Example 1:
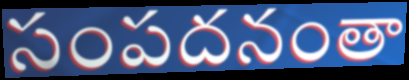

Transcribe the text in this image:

సంపదనంతా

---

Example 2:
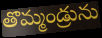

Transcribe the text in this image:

తొమ్మండ్రును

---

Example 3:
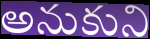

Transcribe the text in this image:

అనుకుని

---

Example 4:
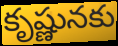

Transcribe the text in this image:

కృష్ణునకు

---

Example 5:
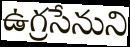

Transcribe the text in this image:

ఉగ్రసేనుని